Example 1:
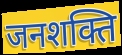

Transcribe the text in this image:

जनशक्ति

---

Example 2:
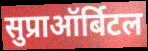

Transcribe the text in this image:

सुप्राऑर्बिटल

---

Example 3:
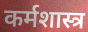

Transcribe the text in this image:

कर्मशास्त्र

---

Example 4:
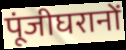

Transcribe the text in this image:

पूंजीघरानों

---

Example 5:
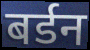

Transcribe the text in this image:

बर्डन